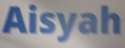
Aisyah